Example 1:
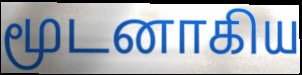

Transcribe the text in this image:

மூடனாகிய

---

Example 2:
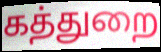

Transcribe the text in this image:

கத்துறை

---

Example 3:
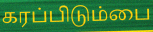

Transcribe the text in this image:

கரப்பிடும்பை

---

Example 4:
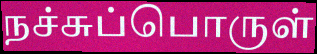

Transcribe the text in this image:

நச்சுப்பொருள்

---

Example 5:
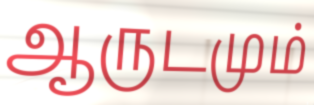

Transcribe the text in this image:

ஆருடமும்